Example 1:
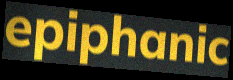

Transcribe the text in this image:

epiphanic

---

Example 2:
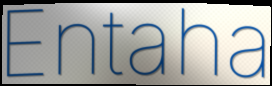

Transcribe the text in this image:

Entaha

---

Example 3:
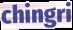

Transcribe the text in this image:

chingri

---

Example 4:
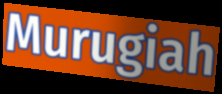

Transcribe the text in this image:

Murugiah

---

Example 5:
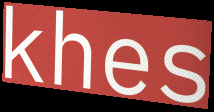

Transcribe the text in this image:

khes